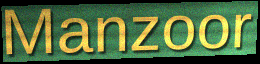
Manzoor